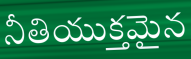
నీతియుక్తమైన